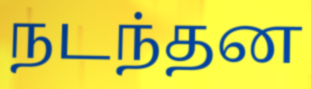
நடந்தன